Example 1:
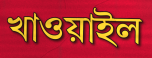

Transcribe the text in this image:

খাওয়াইল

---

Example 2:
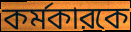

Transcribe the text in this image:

কর্মকারকে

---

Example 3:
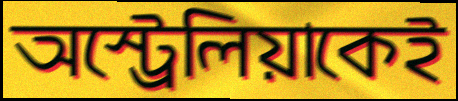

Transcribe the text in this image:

অস্ট্রেলিয়াকেই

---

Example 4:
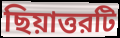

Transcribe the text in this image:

ছিয়াত্তরটি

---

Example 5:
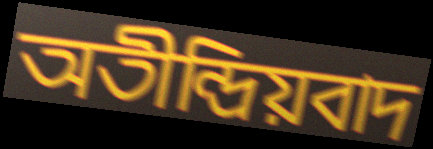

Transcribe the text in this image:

অতীন্দ্রিয়বাদ